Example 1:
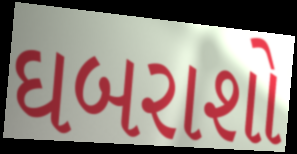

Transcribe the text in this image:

ઘબરાશો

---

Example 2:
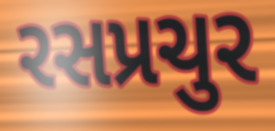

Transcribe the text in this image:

રસપ્રચુર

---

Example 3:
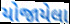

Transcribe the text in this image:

યોજાયેલા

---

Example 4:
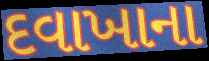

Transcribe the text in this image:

દવાખાના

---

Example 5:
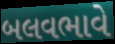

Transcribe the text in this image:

બલવભાવે